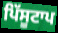
ਪਿੱਸੂਟਾਪ